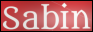
Sabin